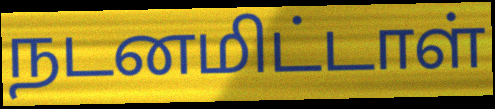
நடனமிட்டாள்